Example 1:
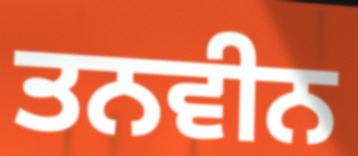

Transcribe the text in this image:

ਤਨਵੀਨ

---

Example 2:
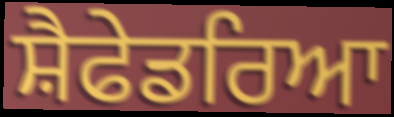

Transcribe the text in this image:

ਸ਼ੈਫੇਡਰਿਆ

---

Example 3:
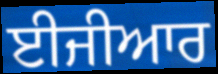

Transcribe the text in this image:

ਈਜੀਆਰ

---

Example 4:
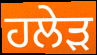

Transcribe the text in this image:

ਹਲੇੜ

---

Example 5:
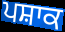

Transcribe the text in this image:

ਪਸ਼ਾਕ